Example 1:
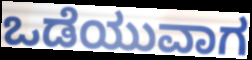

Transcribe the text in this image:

ಒಡೆಯುವಾಗ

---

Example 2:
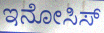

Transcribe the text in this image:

ಇನೋಸಿಸ್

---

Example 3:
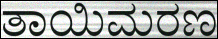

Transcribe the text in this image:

ತಾಯಿಮರಣ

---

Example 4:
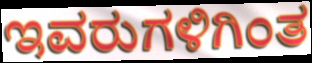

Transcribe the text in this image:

ಇವರುಗಳಿಗಿಂತ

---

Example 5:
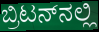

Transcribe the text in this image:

ಬ್ರಿಟನ್‌ನಲ್ಲಿ